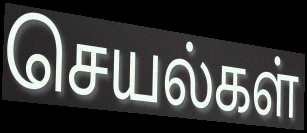
செயல்கள்